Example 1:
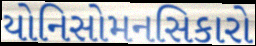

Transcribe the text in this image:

યોનિસોમનસિકારો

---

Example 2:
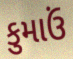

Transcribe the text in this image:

કુમાઉં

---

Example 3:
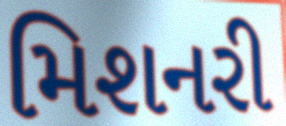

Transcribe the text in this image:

મિશનરી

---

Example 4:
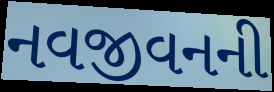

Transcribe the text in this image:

નવજીવનની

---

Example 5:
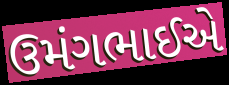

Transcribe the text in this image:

ઉમંગભાઈએ